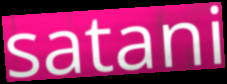
satani